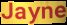
Jayne